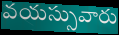
వయస్సువారు